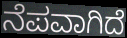
ನೆಪವಾಗಿದೆ